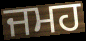
ਜਮਹ